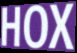
HOX